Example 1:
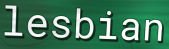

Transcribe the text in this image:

lesbian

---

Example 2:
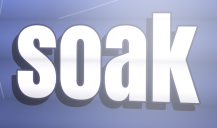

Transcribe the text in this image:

soak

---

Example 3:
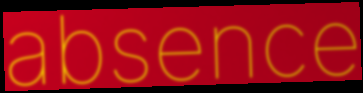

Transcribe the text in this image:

absence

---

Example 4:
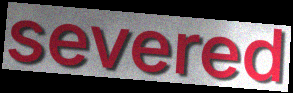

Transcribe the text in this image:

severed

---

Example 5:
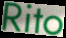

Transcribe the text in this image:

Rito